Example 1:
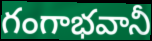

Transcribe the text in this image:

గంగాభవానీ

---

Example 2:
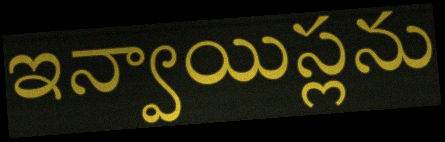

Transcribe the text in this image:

ఇన్వాయిస్లను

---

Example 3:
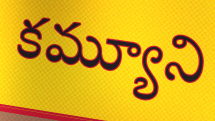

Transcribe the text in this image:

కమ్యూని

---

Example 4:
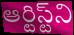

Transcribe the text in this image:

ఆర్టిస్ట్‌ని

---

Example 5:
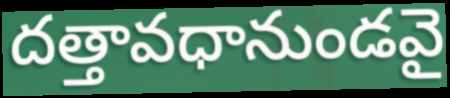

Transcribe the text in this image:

దత్తావధానుండవై